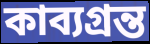
কাব্যগ্রন্ত